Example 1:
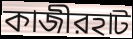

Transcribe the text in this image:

কাজীরহাট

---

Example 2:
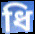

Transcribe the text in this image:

ধি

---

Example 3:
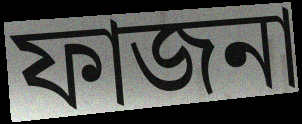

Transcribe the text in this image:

ফাজনা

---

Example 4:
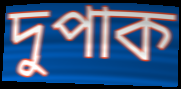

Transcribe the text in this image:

দুপাক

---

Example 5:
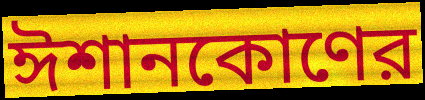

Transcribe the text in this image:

ঈশানকোণের